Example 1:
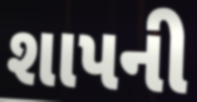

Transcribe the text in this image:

શાપની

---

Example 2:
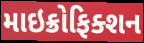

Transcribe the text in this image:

માઇક્રોફિક્શન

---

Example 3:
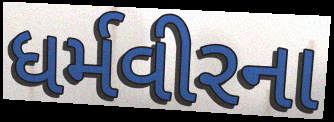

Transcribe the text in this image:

ધર્મવીરના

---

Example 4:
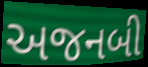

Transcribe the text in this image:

અજનબી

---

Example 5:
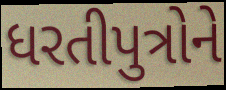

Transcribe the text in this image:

ધરતીપુત્રોને